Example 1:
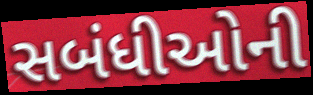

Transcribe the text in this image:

સબંધીઓની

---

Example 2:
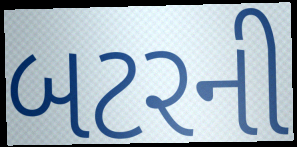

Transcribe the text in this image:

બટરની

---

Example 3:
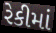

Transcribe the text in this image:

રેકીમાં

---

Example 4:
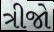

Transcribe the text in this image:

ત્રીજો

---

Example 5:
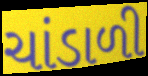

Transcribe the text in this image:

ચાંડાળી